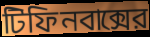
টিফিনবাক্সের